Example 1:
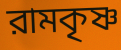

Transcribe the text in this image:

রামকৃষ্ণ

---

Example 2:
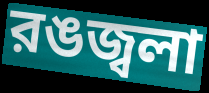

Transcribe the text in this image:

রঙজ্বলা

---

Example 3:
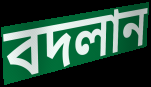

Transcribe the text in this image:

বদলান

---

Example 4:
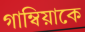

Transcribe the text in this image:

গাম্বিয়াকে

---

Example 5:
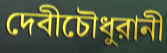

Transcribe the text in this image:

দেবীচৌধুরানী